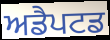
ਅਡੈਪਟਡ